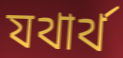
যথার্থ